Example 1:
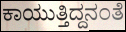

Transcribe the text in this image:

ಕಾಯುತ್ತಿದ್ದನಂತೆ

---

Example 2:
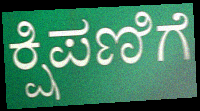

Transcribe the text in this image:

ಕ್ಷಿಪಣಿಗೆ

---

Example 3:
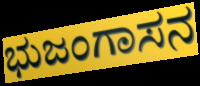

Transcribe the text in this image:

ಭುಜಂಗಾಸನ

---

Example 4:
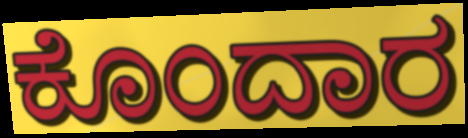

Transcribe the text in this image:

ಕೊಂದಾರ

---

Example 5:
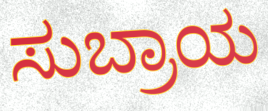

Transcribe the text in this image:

ಸುಬ್ರಾಯ